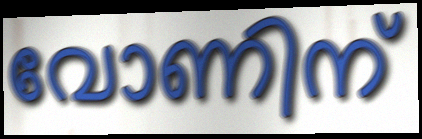
വോണിന്